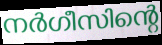
നർഗീസിന്റെ